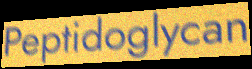
Peptidoglycan